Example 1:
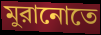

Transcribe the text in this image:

মুরানোতে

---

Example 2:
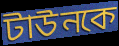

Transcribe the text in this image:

টাউনকে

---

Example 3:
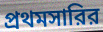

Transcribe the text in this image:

প্রথমসারির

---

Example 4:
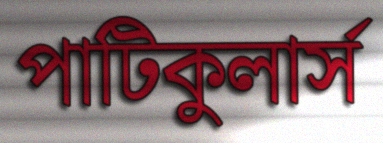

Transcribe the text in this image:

পাটিকুলার্স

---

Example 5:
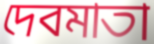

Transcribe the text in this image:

দেবমাতা